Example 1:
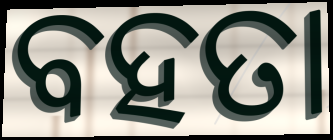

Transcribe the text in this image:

ବହତା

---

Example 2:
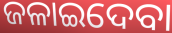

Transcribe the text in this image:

ଜଳାଇଦେବା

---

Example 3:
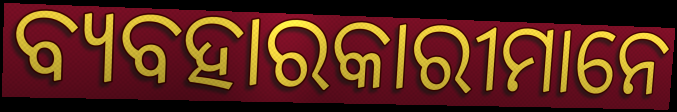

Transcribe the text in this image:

ବ୍ୟବହାରକାରୀମାନେ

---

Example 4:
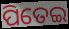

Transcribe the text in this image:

ପିତେଇ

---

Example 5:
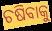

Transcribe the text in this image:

ଚଷିବାକୁ